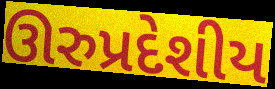
ઊરુપ્રદેશીય